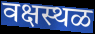
वक्षस्थळ